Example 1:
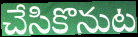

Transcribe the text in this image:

చేసికొనుట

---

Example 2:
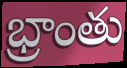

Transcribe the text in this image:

భ్రాంతు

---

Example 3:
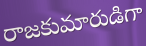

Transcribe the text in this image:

రాజకుమారుడిగా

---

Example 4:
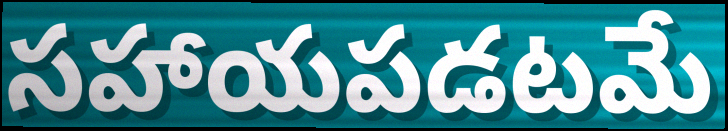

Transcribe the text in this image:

సహాయపడటమే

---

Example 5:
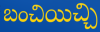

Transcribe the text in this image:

బంచియిచ్చి